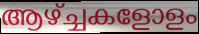
ആഴ്ച്ചകളോളം